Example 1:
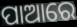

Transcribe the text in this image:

ପାଆରେ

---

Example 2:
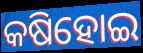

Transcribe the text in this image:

କଷିହୋଇ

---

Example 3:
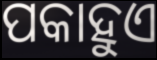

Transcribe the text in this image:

ପକାହୁଏ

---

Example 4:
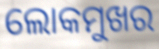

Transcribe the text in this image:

ଲୋକମୁଖର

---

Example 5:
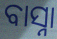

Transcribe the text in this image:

ବାସ୍ନା